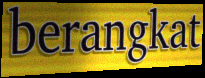
berangkat